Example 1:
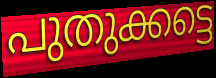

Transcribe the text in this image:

പുതുക്കട്ടെ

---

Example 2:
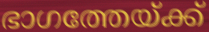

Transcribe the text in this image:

ഭാഗത്തേയ്ക്ക്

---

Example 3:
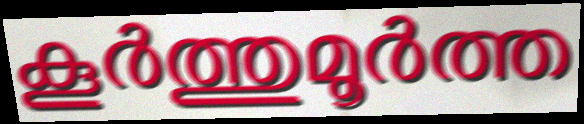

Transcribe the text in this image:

കൂർത്തുമൂർത്ത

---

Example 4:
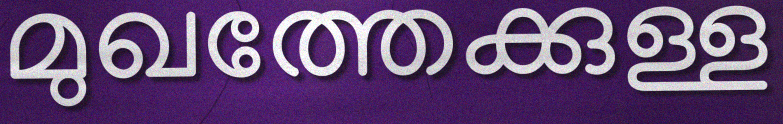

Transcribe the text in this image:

മുഖത്തേക്കുള്ള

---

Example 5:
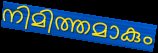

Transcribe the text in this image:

നിമിത്തമാകും